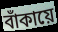
বাঁকায়ে